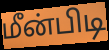
மீன்பிடி